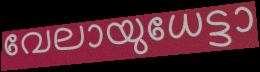
വേലായുധേട്ടാ